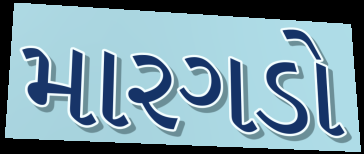
મારગડો